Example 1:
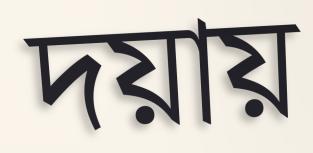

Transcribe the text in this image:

দয়ায়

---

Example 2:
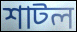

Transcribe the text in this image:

শাট্ল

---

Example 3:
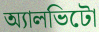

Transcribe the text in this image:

অ্যালভিটো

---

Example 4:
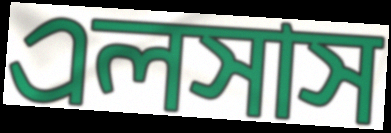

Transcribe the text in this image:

এলসাস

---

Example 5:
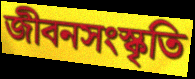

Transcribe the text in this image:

জীবনসংস্কৃতি